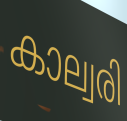
കാല്വരി